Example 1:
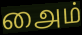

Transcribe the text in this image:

அைம்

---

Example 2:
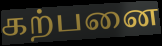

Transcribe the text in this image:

கற்பனை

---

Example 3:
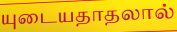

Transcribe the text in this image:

யுடையதாதலால்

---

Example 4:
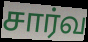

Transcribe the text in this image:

சார்வ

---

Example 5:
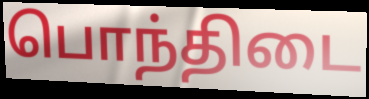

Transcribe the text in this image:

பொந்திடை